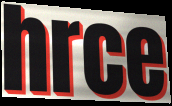
hrce